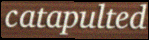
catapulted